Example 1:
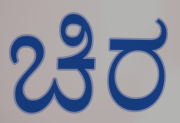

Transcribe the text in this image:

ಚಿರ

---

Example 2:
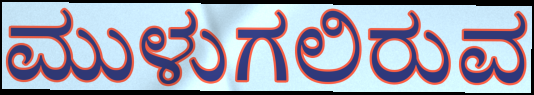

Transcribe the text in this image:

ಮುಳುಗಲಿರುವ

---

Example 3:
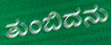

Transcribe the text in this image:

ತುಂಬಿದನು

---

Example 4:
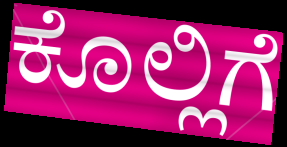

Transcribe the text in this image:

ಕೊಲ್ಲಿಗೆ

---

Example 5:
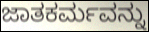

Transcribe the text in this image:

ಜಾತಕರ್ಮವನ್ನು